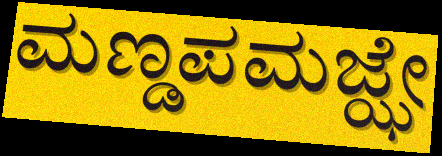
ಮಣ್ಡಪಮಜ್ಝೇ